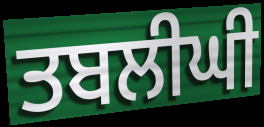
ਤਬਲੀਘੀ